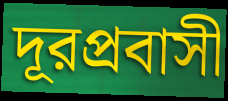
দূরপ্রবাসী